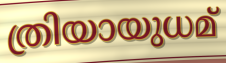
ത്രിയായുധമ്